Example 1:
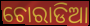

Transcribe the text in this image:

ଚୋରାଡିଆ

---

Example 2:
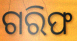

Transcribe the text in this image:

ଗରିଫ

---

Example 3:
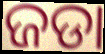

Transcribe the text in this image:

ଜଡା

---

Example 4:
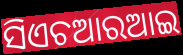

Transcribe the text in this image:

ସିଏଚଆରଆଇ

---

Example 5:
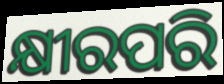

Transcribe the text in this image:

କ୍ଷୀରପରି